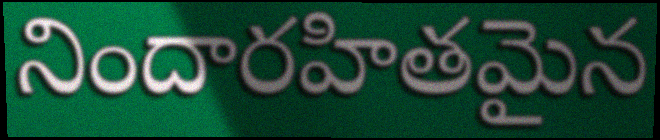
నిందారహితమైన